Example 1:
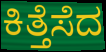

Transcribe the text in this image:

ಕಿತ್ತೆಸೆದ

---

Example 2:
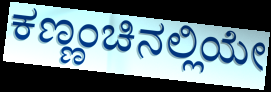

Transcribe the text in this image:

ಕಣ್ಣಂಚಿನಲ್ಲಿಯೇ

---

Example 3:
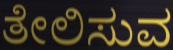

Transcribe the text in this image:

ತೇಲಿಸುವ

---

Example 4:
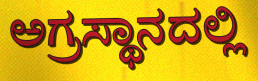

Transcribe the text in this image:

ಅಗ್ರಸ್ಥಾನದಲ್ಲಿ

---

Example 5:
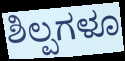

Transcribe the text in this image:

ಶಿಲ್ಪಗಳೂ